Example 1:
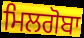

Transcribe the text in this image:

ਮਿਲਗੋਬਾ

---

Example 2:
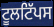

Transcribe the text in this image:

ਟੂਲਟਿੱਪਸ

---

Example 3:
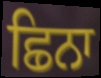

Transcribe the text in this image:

ਛਿਨਾ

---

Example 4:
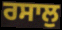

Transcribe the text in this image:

ਰਸਾਲੁ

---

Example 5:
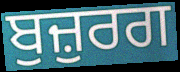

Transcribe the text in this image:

ਬੁਜ਼ੁਰਗ